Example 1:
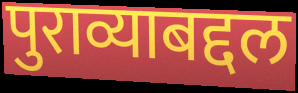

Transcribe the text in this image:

पुराव्याबद्दल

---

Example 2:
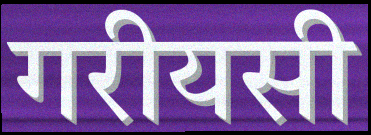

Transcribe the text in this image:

गरीयसी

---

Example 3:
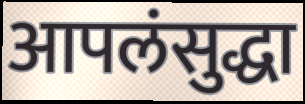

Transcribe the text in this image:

आपलंसुद्धा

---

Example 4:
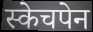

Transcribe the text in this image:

स्केचपेन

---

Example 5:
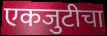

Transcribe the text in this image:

एकजुटीचा